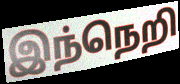
இந்நெறி